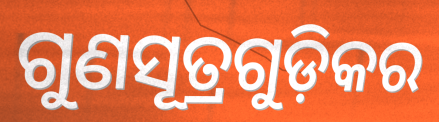
ଗୁଣସୂତ୍ରଗୁଡ଼ିକର